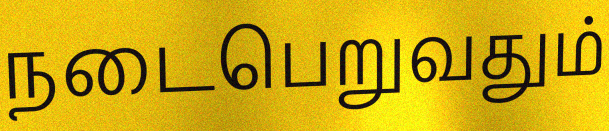
நடைபெறுவதும்